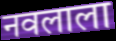
नवलाला